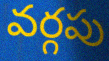
వర్గపు